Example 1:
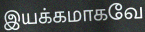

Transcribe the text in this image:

இயக்கமாகவே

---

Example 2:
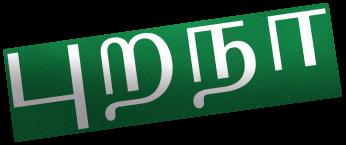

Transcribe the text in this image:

புறநா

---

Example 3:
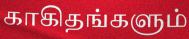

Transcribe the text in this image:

காகிதங்களும்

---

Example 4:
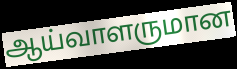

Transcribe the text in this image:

ஆய்வாளருமான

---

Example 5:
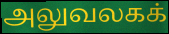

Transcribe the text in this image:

அலுவலகக்